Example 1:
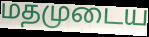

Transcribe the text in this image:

மதமுடைய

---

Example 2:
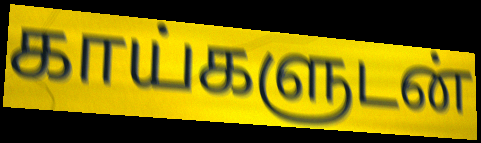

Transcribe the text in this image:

காய்களுடன்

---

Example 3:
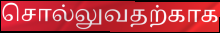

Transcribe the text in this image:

சொல்லுவதற்காக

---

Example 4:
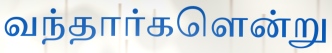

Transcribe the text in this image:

வந்தார்களென்று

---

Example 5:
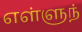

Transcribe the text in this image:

எள்ளுந்